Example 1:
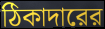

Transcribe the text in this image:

ঠিকাদারের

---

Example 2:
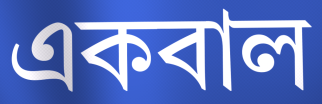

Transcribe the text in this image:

একবাল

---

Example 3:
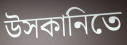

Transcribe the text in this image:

উসকানিতে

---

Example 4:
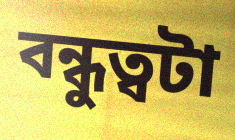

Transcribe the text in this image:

বন্ধুত্বটা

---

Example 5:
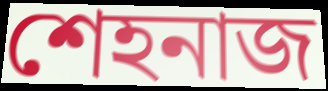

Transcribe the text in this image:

শেহনাজ